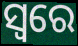
ସ୍ୱରେ